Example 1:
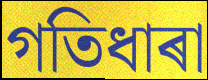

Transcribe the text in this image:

গতিধাৰা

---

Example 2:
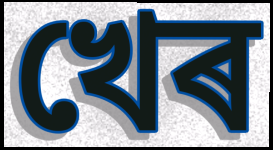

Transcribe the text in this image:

খেৰ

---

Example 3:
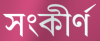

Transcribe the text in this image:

সংকীৰ্ণ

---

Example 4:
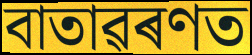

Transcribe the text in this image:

বাতাৱৰণত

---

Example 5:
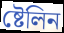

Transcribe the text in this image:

ষ্টেলিন